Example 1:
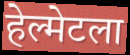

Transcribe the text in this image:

हेल्मेटला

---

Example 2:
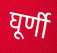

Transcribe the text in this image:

घूर्णी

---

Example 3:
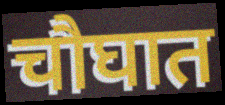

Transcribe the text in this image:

चौघात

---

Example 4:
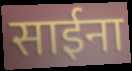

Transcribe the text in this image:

साईना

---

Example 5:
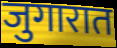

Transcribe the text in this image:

जुगारात